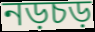
নড়চড়